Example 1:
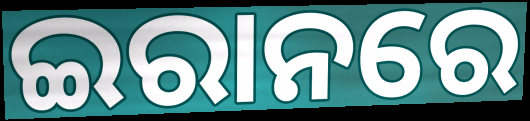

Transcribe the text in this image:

ଇରାନରେ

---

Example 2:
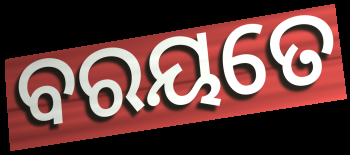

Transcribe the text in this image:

ବରୟତେ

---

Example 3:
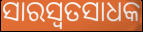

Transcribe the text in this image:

ସାରସ୍ଵତସାଧକ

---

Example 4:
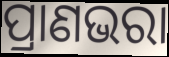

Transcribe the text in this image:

ପ୍ରାଣଭରା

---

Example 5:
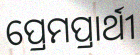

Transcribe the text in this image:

ପ୍ରେମପ୍ରାର୍ଥୀ